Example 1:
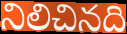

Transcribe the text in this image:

నిలిచినది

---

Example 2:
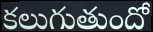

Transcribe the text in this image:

కలుగుతుందో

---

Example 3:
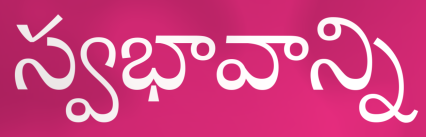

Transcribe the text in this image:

స్వభావాన్ని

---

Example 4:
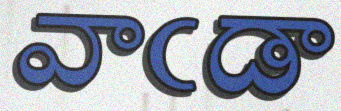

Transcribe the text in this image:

వాఁడా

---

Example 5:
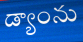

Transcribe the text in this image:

డ్యాంను